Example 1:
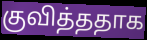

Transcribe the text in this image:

குவித்ததாக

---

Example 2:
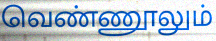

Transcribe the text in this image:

வெண்ணூலும்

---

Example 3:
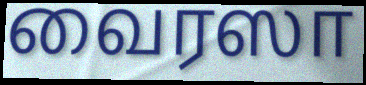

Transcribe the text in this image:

வைரஸா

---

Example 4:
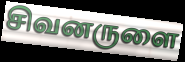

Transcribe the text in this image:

சிவனருளை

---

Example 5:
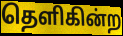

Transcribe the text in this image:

தெளிகின்ற